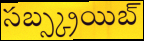
సబ్స్క్రయిబ్